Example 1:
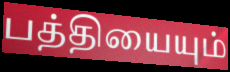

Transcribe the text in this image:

பத்தியையும்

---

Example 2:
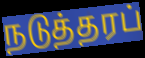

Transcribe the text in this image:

நடுத்தரப்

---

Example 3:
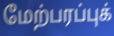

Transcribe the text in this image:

மேற்பரப்புக்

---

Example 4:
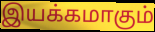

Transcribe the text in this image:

இயக்கமாகும்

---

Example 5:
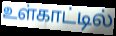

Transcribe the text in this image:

உள்காட்டில்